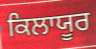
ਕਿਲਾਯੂਰ